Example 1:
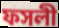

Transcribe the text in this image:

ফসলী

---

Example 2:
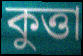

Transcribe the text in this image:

কুত্তা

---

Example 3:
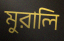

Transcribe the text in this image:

মুরালি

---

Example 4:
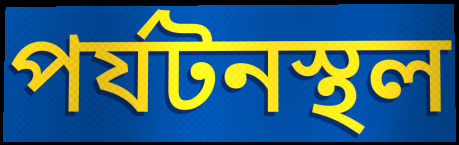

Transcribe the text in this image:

পর্যটনস্থল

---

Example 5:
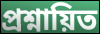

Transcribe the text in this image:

প্রশ্নায়িত